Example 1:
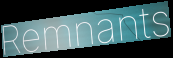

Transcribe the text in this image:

Remnants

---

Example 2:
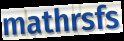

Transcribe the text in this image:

mathrsfs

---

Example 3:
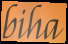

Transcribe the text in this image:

biha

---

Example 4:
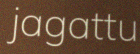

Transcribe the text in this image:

jagattu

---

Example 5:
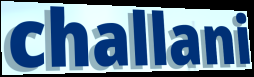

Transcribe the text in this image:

challani